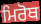
ਮਿਰੋਥ